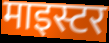
माइस्टर